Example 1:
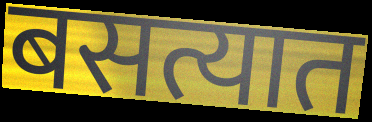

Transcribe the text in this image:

बसत्यात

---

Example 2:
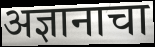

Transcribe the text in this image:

अज्ञानाचा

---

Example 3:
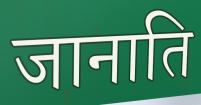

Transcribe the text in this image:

जानाति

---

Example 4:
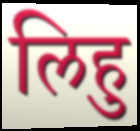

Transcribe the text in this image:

लिहु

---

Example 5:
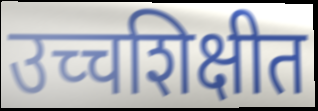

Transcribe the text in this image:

उच्चशिक्षीत